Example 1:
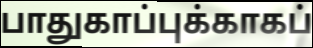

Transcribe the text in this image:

பாதுகாப்புக்காகப்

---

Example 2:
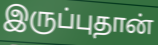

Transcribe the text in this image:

இருப்புதான்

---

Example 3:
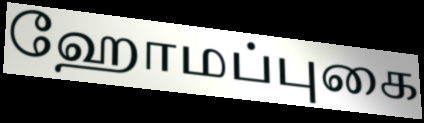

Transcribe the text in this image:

ஹோமப்புகை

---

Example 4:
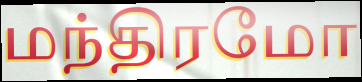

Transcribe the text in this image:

மந்திரமோ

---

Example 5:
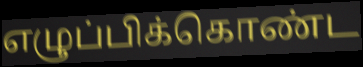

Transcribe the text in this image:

எழுப்பிக்கொண்ட